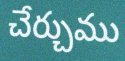
చేర్చుము